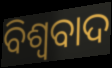
ବିଶ୍ୱବାଦ